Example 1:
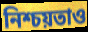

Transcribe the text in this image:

নিশ্চয়তাও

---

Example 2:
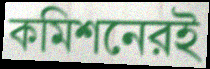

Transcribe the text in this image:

কমিশনেরই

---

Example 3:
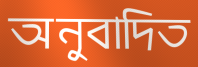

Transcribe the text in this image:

অনুবাদিত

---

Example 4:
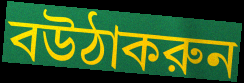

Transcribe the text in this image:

বউঠাকরুন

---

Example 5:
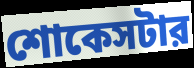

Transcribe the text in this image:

শোকেসটার